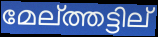
മേല്ത്തട്ടില്